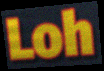
Loh